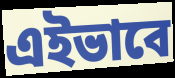
এইভাবে